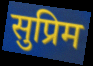
सुप्रिम